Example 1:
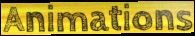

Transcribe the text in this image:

Animations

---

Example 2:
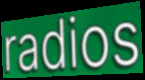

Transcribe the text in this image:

radios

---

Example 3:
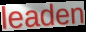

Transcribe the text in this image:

leaden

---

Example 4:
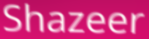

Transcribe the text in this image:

Shazeer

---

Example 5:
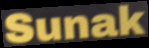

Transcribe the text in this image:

Sunak